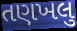
તણખલુ